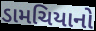
ડામચિયાનો